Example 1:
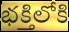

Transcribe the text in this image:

భక్తిలోకి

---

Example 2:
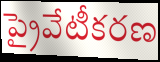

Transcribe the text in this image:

ప్రైవేటీకరణ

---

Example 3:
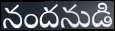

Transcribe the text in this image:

నందనుడి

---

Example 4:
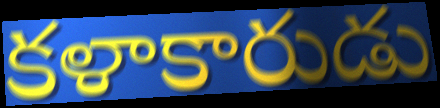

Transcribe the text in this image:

కళాకారుడు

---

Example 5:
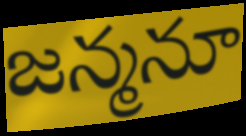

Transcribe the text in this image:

జన్మనూ